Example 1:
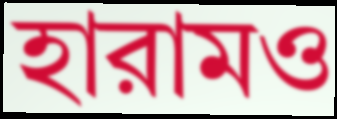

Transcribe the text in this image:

হারামও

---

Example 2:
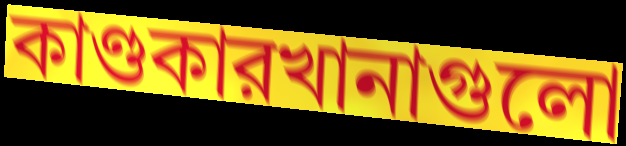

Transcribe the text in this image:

কাণ্ডকারখানাগুলো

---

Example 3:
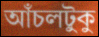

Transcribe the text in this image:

আঁচলটুকু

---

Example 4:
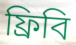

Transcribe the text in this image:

ফ্রিবি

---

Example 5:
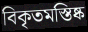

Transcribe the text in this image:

বিকৃতমস্তিষ্ক